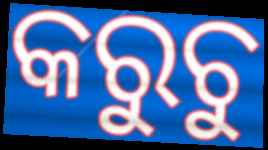
କରୁଚୁ